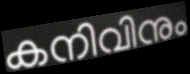
കനിവിനും